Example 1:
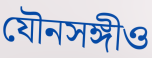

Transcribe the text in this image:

যৌনসঙ্গীও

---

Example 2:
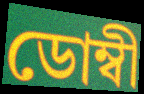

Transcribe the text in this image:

ডোম্বী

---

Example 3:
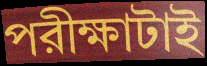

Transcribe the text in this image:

পরীক্ষাটাই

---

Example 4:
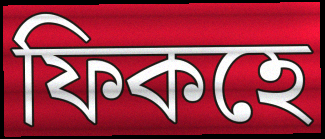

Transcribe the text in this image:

ফিকহে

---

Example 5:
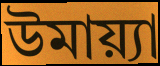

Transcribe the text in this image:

উমায়্যা